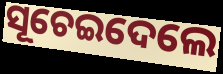
ସୂଚେଇଦେଲେ